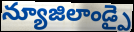
న్యూజిలాండ్పై